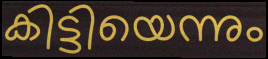
കിട്ടിയെന്നും